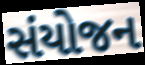
સંયોજન